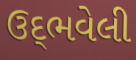
ઉદ્‌ભવેલી